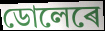
ডোলেৰে